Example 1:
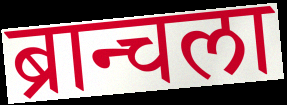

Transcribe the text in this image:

ब्रान्चला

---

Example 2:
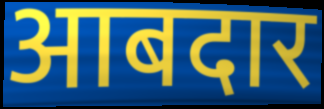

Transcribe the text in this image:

आबदार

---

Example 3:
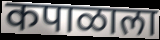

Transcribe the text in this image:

कपाळाला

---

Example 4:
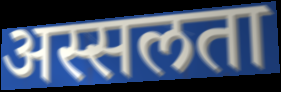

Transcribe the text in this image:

अस्सलता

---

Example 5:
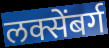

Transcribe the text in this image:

लक्सेंबर्ग